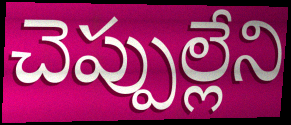
చెప్పుల్లేని